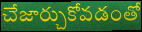
చేజార్చుకోవడంతో